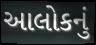
આલોકનું